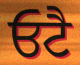
ਓਟੈ